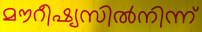
മൗറീഷ്യസിൽനിന്ന്